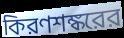
কিরণশঙ্করের